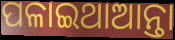
ପଳାଇଥାଆନ୍ତା